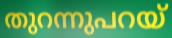
തുറന്നുപറയ്